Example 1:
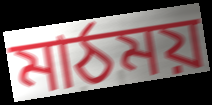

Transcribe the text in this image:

মাঠময়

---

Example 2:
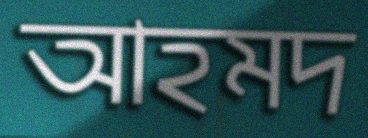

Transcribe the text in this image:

আহমদ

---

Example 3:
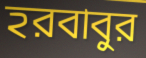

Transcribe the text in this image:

হরবাবুর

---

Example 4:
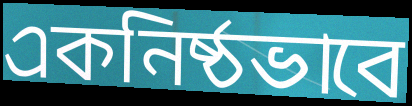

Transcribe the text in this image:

একনিষ্ঠভাবে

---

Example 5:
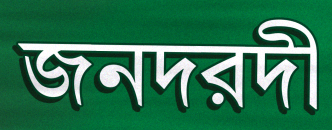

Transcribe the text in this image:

জনদরদী